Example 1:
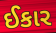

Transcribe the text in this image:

ઈકાર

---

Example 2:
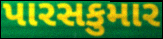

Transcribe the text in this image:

પારસકુમાર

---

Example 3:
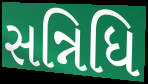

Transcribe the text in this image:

સન્નિધિ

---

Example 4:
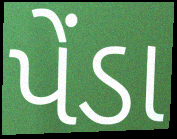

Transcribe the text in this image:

પેંડા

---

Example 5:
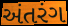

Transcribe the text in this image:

અંતરંગ